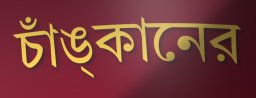
চাঁঙ্‌কানের